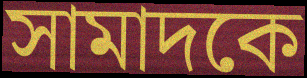
সামাদকে